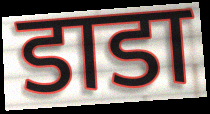
डाडा